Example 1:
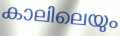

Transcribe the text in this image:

കാലിലെയും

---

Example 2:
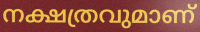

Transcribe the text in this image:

നക്ഷത്രവുമാണ്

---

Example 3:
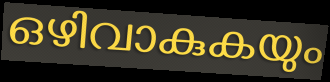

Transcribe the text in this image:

ഒഴിവാകുകയും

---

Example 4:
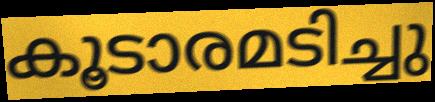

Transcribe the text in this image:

കൂടാരമടിച്ചു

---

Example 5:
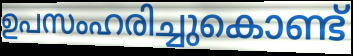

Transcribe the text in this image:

ഉപസംഹരിച്ചുകൊണ്ട്